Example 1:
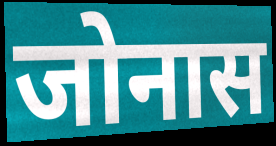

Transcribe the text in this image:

जोनास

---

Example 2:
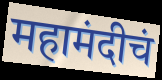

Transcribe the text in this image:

महामंदीचं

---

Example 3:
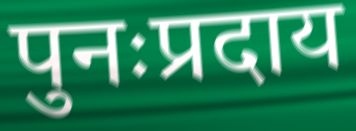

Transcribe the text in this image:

पुनःप्रदाय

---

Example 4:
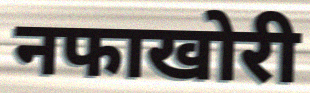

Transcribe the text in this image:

नफाखोरी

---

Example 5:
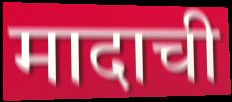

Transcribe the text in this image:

मादाची